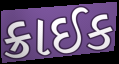
ક્રાઈક